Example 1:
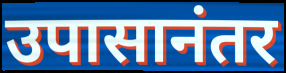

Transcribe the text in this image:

उपासानंतर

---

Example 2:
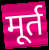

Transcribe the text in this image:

मूर्त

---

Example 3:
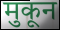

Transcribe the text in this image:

मुकून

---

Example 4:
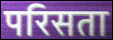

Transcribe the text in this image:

परिसता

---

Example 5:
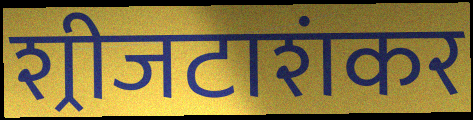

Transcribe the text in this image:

श्रीजटाशंकर